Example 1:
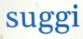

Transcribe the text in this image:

suggi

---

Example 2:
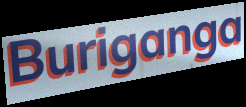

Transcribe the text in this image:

Buriganga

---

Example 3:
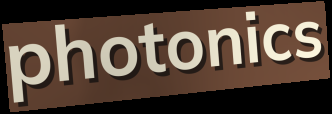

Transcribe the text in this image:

photonics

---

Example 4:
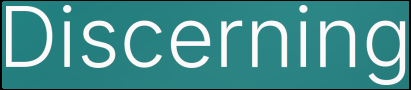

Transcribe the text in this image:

Discerning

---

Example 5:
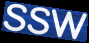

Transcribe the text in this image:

SSW